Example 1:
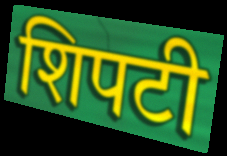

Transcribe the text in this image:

शिपटी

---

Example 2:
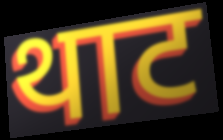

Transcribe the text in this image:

थाट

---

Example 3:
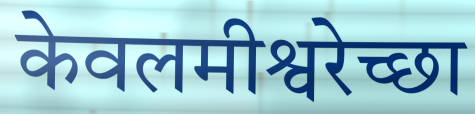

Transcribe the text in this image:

केवलमीश्वरेच्छा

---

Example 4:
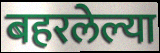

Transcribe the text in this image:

बहरलेल्या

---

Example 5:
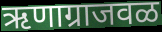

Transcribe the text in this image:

ऋणाग्राजवळ